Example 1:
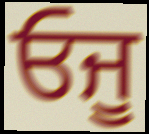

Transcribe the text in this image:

ਓਜੂ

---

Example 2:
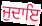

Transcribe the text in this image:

ਜੁਦਾਇ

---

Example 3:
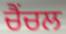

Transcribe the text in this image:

ਚੈਂਚਲ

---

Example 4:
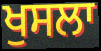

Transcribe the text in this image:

ਖੁਸਲਾ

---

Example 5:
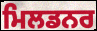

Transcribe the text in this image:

ਮਿਲਡਨਰ